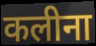
कलीना